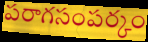
పరాగసంపర్కం